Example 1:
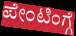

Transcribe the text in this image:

ಪೇಂಟಿಂಗ್ಗೆ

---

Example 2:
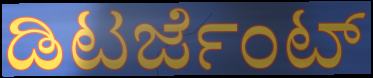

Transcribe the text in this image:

ಡಿಟರ್ಜೆಂಟ್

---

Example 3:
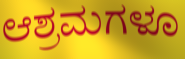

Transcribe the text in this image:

ಆಶ್ರಮಗಳೂ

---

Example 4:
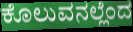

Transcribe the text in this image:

ಕೊಲುವನಲ್ಲೆಂದ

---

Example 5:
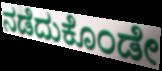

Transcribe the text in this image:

ನಡೆದುಕೊಂಡೇ